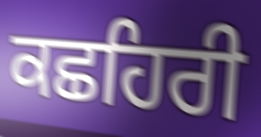
ਕਛਹਿਰੀ